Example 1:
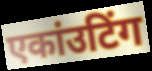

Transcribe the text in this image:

एकांउटिंग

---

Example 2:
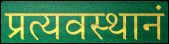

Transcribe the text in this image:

प्रत्यवस्थानं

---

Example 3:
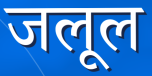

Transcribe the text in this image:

जलूल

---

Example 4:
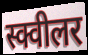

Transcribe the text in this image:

स्क्वीलर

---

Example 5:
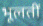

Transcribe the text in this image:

भूलतीं